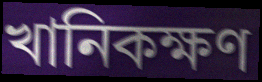
খানিকক্ষণ